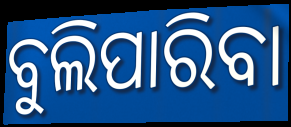
ବୁଲିପାରିବା